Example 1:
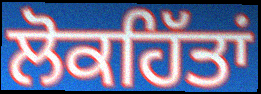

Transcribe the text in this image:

ਲੋਕਹਿੱਤਾਂ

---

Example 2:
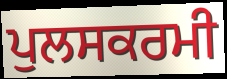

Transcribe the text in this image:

ਪੁਲਸਕਰਮੀ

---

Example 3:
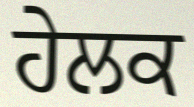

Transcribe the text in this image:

ਹੇਲਕ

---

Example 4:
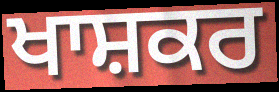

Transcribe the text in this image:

ਖਾਸ਼ਕਰ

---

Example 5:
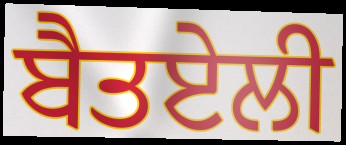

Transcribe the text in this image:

ਬੈਤਏਲੀ